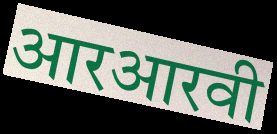
आरआरवी